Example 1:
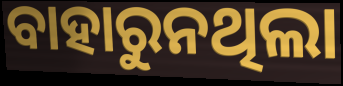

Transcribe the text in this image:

ବାହାରୁନଥିଲା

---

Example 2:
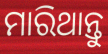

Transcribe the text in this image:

ମାରିଥାନ୍ତୁ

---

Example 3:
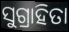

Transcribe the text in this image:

ସୁଗ୍ରାହିତା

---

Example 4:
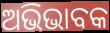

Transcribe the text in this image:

ଅଭିଭାବକ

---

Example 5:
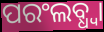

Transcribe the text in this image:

ପରଂଲବ୍ଧ୍ଵା